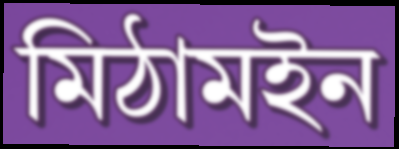
মিঠামইন